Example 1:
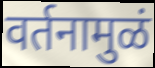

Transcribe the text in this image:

वर्तनामुळं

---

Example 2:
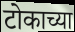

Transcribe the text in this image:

टोकाच्या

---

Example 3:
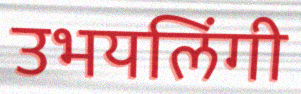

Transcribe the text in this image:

उभयलिंगी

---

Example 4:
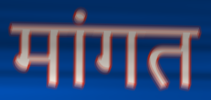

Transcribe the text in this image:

मांगत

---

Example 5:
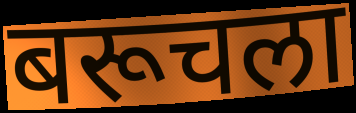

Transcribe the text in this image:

बरूचला